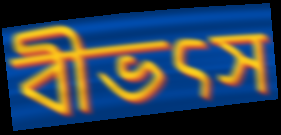
বীভৎস